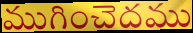
ముగించెదము